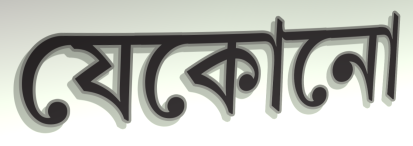
যেকোনো